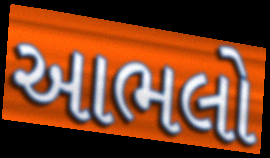
આભલો